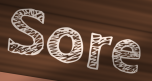
Sore